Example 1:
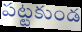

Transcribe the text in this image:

పట్టకుండ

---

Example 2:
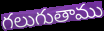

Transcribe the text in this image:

గలుగుతాము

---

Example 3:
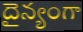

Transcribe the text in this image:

దైన్యంగా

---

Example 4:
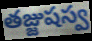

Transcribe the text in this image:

తజ్జుషస్వ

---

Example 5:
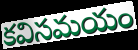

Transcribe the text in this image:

కవిసమయం